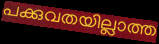
പക്കുവതയില്ലാത്ത